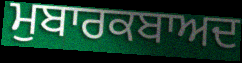
ਮੁਬਾਰਕਬਾਅਦ